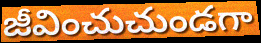
జీవించుచుండగా